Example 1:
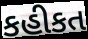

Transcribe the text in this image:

કહીકત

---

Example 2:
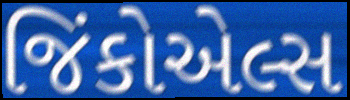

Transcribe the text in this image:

જિંકોએલ્સ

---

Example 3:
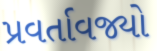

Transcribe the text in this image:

પ્રવર્તાવજ્યો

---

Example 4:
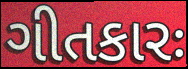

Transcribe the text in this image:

ગીતકારઃ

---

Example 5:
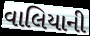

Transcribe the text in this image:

વાલિયાની